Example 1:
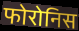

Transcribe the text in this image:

फोरोनिस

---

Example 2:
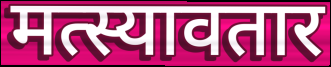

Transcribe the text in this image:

मत्स्यावतार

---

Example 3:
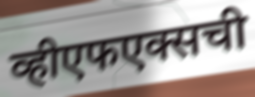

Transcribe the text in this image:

व्हीएफएक्सची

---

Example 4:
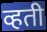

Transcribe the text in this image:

व्हती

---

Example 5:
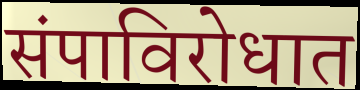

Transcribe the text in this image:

संपाविरोधात